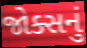
જોક્સનું